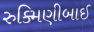
રુક્મિણીબાઈ